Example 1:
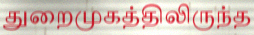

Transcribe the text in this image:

துறைமுகத்திலிருந்த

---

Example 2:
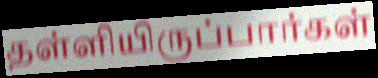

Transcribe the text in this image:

தள்ளியிருப்பார்கள்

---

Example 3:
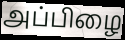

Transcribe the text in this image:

அப்பிழை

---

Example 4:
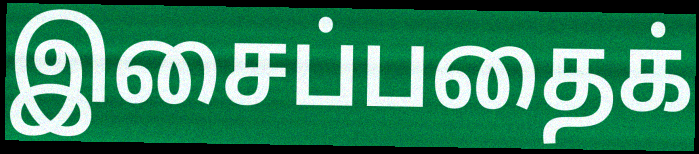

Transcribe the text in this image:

இசைப்பதைக்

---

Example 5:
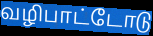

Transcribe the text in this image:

வழிபாட்டோடு